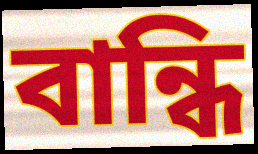
বান্ধি